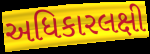
અધિકારલક્ષી